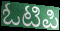
ಓಟಿಪಿ